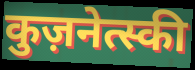
कुज़नेत्स्की